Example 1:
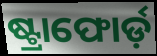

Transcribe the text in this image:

ଷ୍ଟ୍ରାଫୋର୍ଡ଼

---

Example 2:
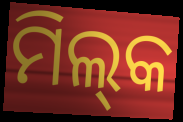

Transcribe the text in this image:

ମିଲ୍‌କ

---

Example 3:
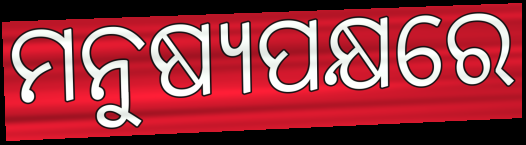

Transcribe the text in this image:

ମନୁଷ୍ୟପକ୍ଷରେ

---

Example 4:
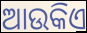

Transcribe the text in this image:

ଆଉକିଏ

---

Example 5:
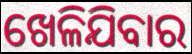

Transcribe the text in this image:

ଖେଳିଯିବାର